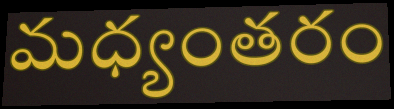
మధ్యంతరం